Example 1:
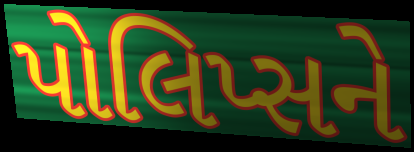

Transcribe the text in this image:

પોલિપ્સને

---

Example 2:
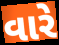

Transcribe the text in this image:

વારે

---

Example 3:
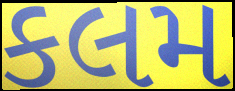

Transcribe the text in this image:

કલમ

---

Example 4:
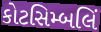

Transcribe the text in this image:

કોટસિમ્બલિં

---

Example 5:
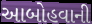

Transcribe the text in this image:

આબોહવાની